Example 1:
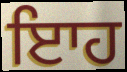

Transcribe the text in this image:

ਇਾਹ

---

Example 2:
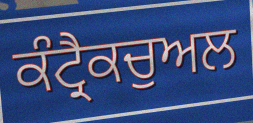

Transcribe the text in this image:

ਕੰਟ੍ਰੈਕਚੁਅਲ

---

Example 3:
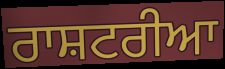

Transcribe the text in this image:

ਰਾਸ਼ਟਰੀਆ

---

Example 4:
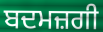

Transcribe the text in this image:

ਬਦਮਜ਼ਗੀ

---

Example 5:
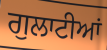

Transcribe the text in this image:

ਗੁਲਾਟੀਆਂ